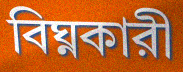
বিঘ্নকারী